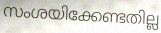
സംശയിക്കേണ്ടതില്ല